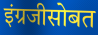
इंग्रजीसोबत